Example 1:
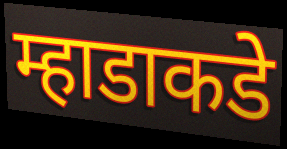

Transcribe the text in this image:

म्हाडाकडे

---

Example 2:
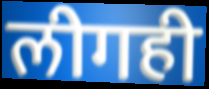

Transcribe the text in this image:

लीगही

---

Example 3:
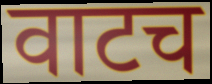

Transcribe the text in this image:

वाटच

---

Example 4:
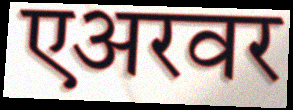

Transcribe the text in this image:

एअरवर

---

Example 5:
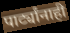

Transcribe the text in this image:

पार्ट्यांनाही